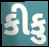
કીકુ